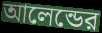
আলেন্ডের